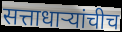
सत्ताधाऱ्यांचीच